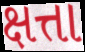
ક્ષત્તા